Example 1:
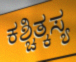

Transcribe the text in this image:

ಕಶ್ಚಿತ್ಕಸ್ಯ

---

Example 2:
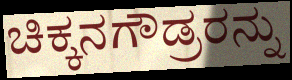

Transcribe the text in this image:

ಚಿಕ್ಕನಗೌಡ್ರರನ್ನು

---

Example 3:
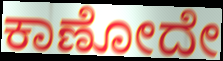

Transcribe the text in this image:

ಕಾಣೋದೇ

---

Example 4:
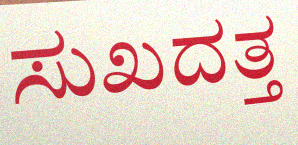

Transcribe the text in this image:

ಸುಖದತ್ತ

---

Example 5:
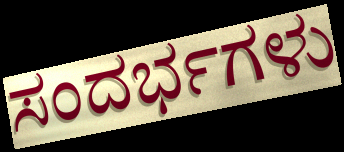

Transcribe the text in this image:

ಸಂದರ್ಭಗಳು